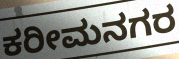
ಕರೀಮನಗರ